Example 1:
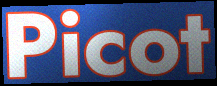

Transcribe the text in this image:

Picot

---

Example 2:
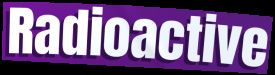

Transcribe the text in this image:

Radioactive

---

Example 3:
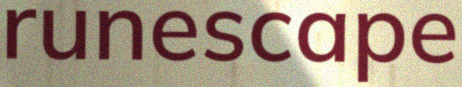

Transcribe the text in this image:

runescape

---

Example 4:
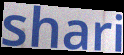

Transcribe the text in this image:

shari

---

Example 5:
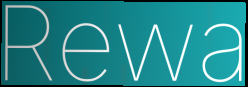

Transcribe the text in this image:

Rewa